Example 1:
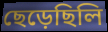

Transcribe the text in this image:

ছেড়েছিলি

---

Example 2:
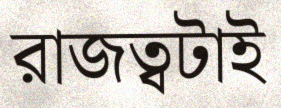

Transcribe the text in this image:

রাজত্বটাই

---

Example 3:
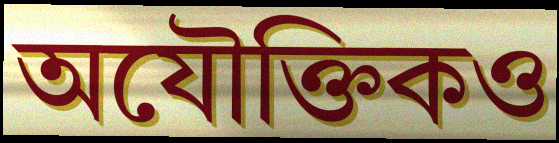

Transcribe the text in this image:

অযৌক্তিকও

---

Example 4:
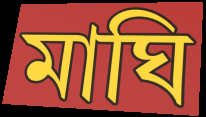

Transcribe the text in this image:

মাঘি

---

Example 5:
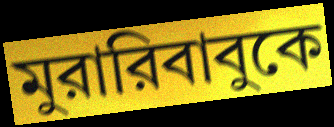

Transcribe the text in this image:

মুরারিবাবুকে